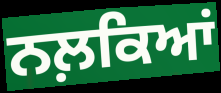
ਨਲ਼ਕਿਆਂ